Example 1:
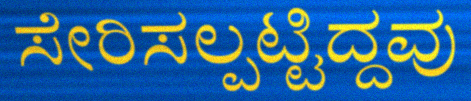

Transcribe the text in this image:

ಸೇರಿಸಲ್ಪಟ್ಟಿದ್ದವು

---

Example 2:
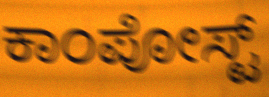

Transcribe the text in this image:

ಕಾಂಪೋಸ್ಟ್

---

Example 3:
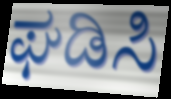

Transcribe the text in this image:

ಘಡಿಸಿ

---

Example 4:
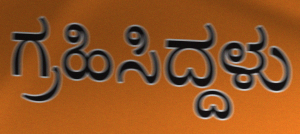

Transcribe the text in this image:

ಗ್ರಹಿಸಿದ್ದಳು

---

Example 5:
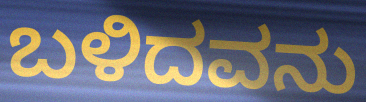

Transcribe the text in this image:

ಬಳಿದವನು